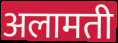
अलामती